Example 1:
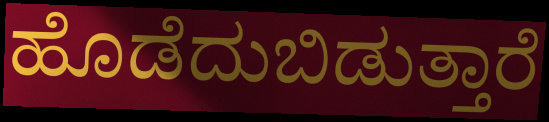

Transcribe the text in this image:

ಹೊಡೆದುಬಿಡುತ್ತಾರೆ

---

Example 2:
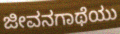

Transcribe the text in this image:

ಜೀವನಗಾಥೆಯು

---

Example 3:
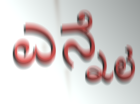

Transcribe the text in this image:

ಎನ್ನೈ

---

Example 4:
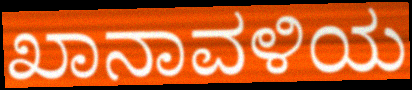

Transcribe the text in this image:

ಖಾನಾವಳಿಯ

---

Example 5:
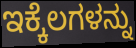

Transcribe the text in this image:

ಇಕ್ಕೆಲಗಳನ್ನು